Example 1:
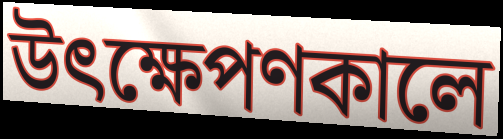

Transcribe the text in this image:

উৎক্ষেপণকালে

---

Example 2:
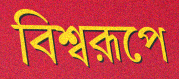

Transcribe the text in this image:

বিশ্বরূপে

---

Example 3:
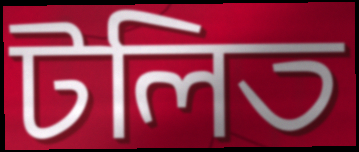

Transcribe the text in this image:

টলিত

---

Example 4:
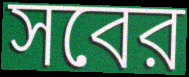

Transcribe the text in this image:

সবের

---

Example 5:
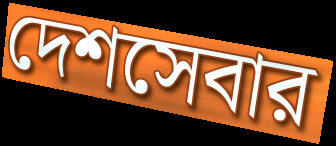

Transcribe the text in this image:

দেশসেবার